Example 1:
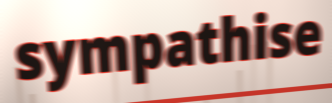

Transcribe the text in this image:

sympathise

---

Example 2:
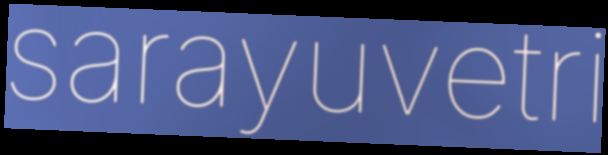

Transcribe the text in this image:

sarayuvetri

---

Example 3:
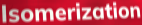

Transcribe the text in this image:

Isomerization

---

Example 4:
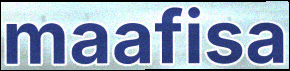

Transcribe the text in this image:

maafisa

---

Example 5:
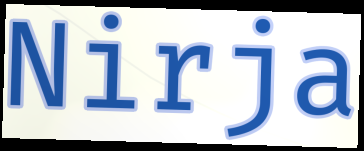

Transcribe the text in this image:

Nirja